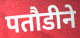
पतौडीने